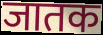
जातक